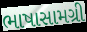
ભાષાસામગ્રી